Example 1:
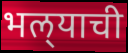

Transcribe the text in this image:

भल्याची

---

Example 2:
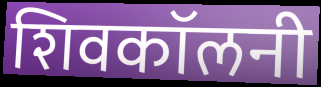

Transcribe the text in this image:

शिवकॉलनी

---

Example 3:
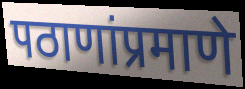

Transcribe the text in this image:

पठाणांप्रमाणे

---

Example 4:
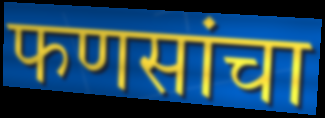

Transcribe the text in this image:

फणसांचा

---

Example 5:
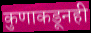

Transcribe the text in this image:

कुणाकडूनही